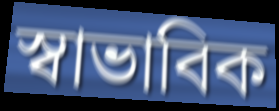
স্বাভাবিক